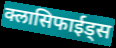
क्लासिफाईड्स